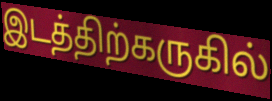
இடத்திற்கருகில்